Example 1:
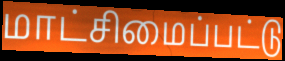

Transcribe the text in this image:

மாட்சிமைப்பட்டு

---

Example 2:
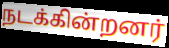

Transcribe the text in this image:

நடக்கின்றனர்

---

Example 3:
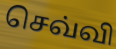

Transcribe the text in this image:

செவ்வி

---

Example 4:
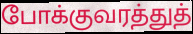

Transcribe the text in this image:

போக்குவரத்துத்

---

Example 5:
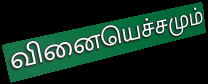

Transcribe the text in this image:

வினையெச்சமும்